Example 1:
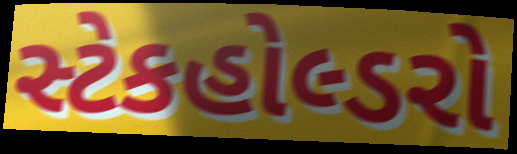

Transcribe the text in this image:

સ્ટેકહોલ્ડરો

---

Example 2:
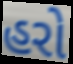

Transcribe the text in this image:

હરો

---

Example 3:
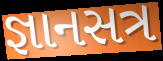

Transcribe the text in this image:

જ્ઞાનસત્ર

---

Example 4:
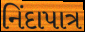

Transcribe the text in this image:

નિંદાપાત્ર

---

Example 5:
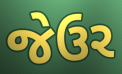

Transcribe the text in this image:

જેઉર